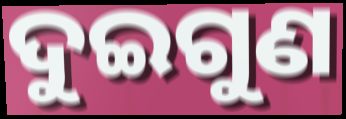
ଦୁଇଗୁଣ